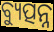
ବ୍ୟୁତ୍ପନ୍ନ